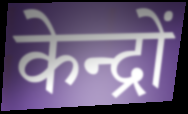
केन्द्रों